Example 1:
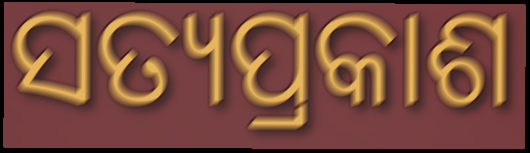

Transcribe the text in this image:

ସତ୍ୟପ୍ରକାଶ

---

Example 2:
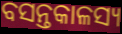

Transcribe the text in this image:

ବସନ୍ତକାଳସ୍ୟ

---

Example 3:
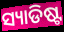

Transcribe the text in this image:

ସ୍ୟାଡିଷ୍ଟ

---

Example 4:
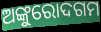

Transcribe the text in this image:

ଅଙ୍କୁରୋଦଗମ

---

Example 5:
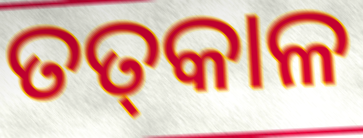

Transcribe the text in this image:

ତତ୍‌କାଳ